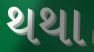
થથા